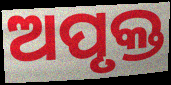
ଅପୃକ୍ତ